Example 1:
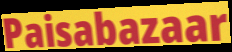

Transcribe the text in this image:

Paisabazaar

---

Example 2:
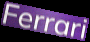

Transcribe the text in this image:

Ferrari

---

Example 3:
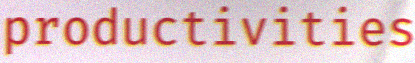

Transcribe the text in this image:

productivities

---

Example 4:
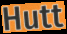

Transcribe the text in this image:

Hutt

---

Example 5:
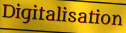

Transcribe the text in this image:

Digitalisation